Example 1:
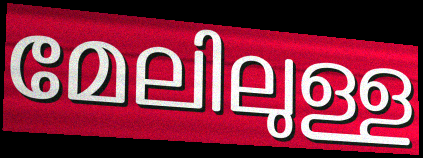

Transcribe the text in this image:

മേലിലുള്ള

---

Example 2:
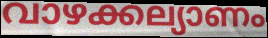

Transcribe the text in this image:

വാഴക്കല്യാണം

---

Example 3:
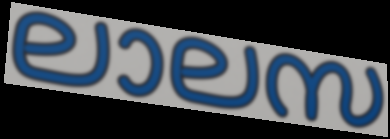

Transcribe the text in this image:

ലാലസ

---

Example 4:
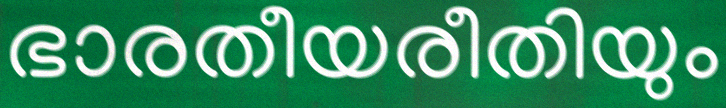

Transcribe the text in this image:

ഭാരതീയരീതിയും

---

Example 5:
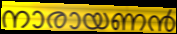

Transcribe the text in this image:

നാരായണൻ